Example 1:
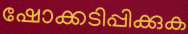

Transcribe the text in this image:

ഷോക്കടിപ്പിക്കുക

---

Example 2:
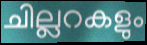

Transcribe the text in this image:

ചില്ലറകളും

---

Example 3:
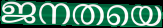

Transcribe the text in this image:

ജനതയെ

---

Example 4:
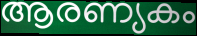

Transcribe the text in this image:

ആരണ്യകം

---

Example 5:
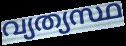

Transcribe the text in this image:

വ്യത്യസ്ഥ